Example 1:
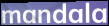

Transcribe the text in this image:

mandala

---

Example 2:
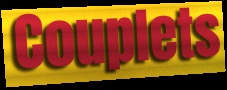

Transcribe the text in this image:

Couplets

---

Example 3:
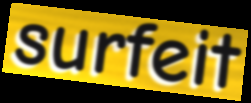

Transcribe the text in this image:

surfeit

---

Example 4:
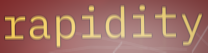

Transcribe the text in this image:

rapidity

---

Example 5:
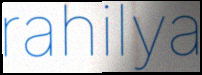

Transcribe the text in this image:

rahilya